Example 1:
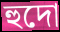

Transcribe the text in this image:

হুদো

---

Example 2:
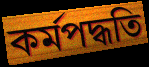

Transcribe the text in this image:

কর্মপদ্ধতি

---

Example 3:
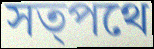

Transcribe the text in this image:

সত্পথে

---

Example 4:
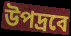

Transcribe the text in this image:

উপদ্রবে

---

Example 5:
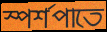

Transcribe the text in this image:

স্পর্শপাতে